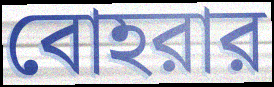
বোহরার